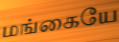
மங்கையே